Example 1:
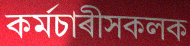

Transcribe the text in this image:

কৰ্মচাৰীসকলক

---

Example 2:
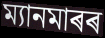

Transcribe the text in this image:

ম্যানমাৰৰ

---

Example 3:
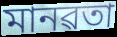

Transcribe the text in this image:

মানৱতা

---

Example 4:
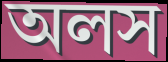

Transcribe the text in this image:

অলস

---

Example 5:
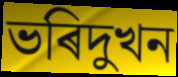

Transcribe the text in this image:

ভৰিদুখন